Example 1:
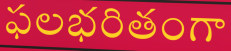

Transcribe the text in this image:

ఫలభరితంగా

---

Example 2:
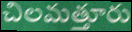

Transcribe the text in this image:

చిలమత్తూరు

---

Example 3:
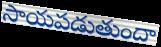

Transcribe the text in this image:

సాయపడుతుందా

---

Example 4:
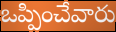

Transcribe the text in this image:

ఒప్పించేవారు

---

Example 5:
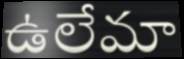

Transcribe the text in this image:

ఉలేమా